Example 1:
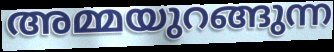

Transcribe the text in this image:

അമ്മയുറങ്ങുന്ന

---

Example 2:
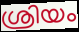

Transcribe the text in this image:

ശ്രിയം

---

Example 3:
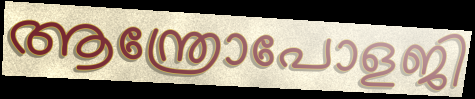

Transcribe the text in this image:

ആന്ത്രോപോളജി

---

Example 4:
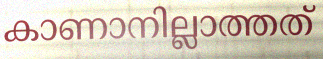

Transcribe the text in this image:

കാണാനില്ലാത്തത്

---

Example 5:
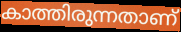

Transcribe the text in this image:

കാത്തിരുന്നതാണ്